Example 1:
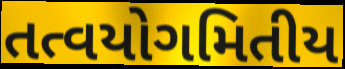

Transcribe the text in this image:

તત્વયોગમિતીય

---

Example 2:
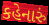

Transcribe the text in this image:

કહેનારું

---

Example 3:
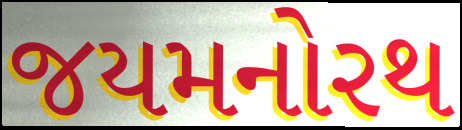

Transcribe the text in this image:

જયમનોરથ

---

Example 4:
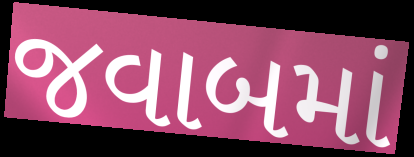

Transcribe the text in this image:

જવાબમાં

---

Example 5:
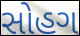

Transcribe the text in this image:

સોહગ